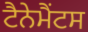
ਟੈਨੇਮੈਂਟਸ